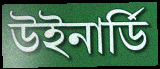
উইনার্ডি